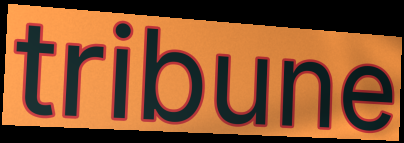
tribune